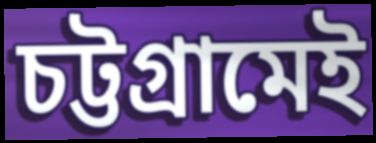
চট্টগ্রামেই